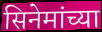
सिनेमांच्या